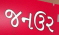
જનઉર